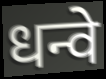
धन्वे